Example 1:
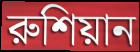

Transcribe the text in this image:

রুশিয়ান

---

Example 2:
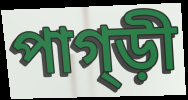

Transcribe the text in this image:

পাগ্ড়ী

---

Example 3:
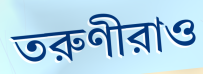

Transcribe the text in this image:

তরুণীরাও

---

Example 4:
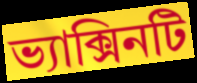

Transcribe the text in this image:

ভ্যাক্সিনটি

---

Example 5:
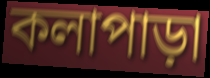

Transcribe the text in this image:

কলাপাড়া